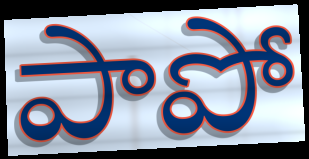
పాపో